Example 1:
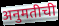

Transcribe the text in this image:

अनुमतीची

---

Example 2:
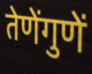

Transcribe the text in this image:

तेणेंगुणें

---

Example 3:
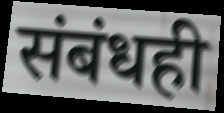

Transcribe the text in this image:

संबंधही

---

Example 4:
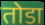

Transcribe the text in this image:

तोडा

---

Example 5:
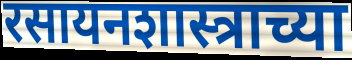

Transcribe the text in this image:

रसायनशास्त्राच्या